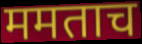
ममताच